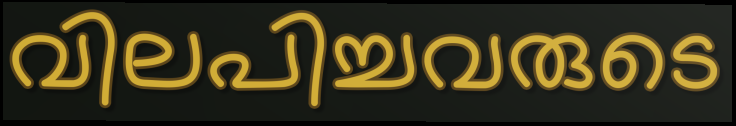
വിലപിച്ചവരുടെ